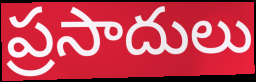
ప్రసాదులు